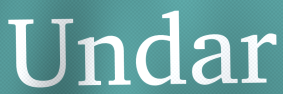
Undar